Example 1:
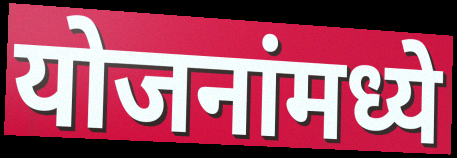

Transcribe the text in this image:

योजनांमध्ये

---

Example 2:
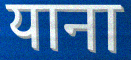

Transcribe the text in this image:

याना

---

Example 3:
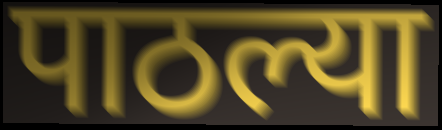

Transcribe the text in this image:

पाठल्या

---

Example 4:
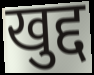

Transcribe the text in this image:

खुद्द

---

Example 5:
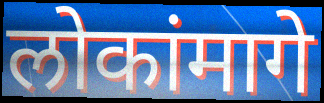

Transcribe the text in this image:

लोकांमागे